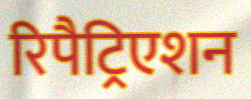
रिपैट्रिएशन